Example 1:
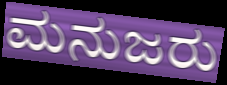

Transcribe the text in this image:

ಮನುಜರು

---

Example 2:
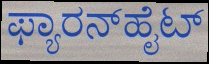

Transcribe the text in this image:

ಫ್ಯಾರನ್‌ಹೈಟ್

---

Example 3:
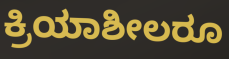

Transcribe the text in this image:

ಕ್ರಿಯಾಶೀಲರೂ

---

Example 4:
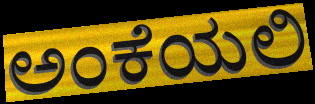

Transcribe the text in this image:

ಅಂಕೆಯಲಿ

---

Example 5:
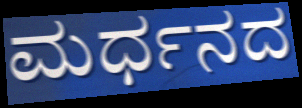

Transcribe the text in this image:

ಮರ್ಧನದ